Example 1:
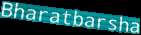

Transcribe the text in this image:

Bharatbarsha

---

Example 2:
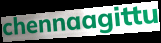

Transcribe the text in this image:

chennaagittu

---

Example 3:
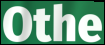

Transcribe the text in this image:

Othe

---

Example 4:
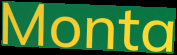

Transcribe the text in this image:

Monta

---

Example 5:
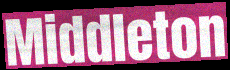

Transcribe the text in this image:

Middleton